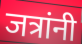
जत्रांनी